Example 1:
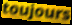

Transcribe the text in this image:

toujours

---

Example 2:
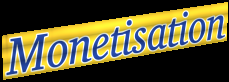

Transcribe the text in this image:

Monetisation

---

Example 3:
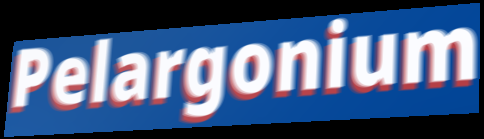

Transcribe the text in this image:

Pelargonium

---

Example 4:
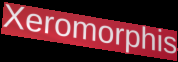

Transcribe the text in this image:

Xeromorphis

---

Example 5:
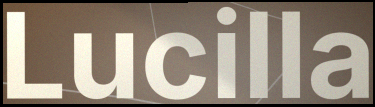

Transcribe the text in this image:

Lucilla